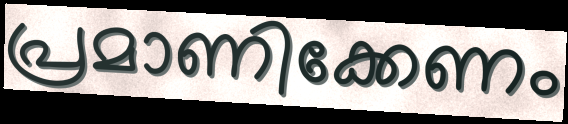
പ്രമാണിക്കേണം